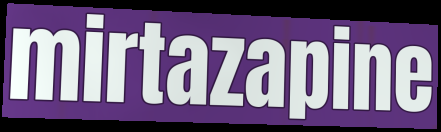
mirtazapine